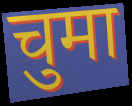
चुमा